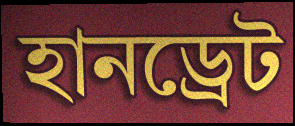
হানড্রেট